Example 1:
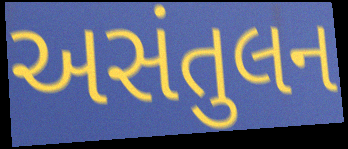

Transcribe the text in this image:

અસંતુલન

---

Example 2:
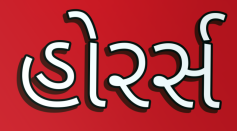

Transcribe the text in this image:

હોરર્સ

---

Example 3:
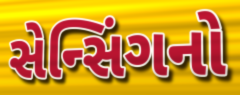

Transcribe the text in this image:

સેન્સિંગનો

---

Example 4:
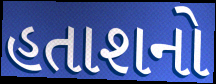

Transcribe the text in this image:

હતાશનો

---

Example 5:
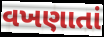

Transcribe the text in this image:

વખણાતાં